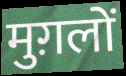
मुग़लों